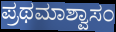
ಪ್ರಥಮಾಶ್ವಾಸಂ